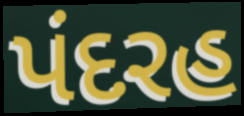
પંદરહ